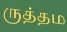
ருத்தம